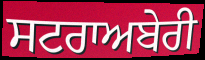
ਸਟਰਾਅਬੇਰੀ